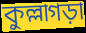
কুল্লাগড়া